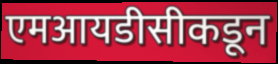
एमआयडीसीकडून